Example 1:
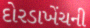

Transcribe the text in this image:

દોરડાખેંચની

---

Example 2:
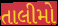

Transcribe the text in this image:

તાલીમો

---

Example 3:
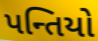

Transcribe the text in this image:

પન્તિયો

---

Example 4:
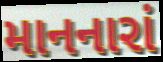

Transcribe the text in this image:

માનનારાં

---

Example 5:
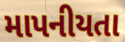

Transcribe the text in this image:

માપનીયતા